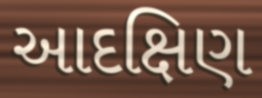
આદક્ષિણ